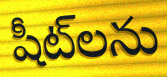
షీట్‌లను